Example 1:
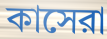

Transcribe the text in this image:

কাসেরা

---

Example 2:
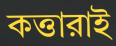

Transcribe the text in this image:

কত্তারাই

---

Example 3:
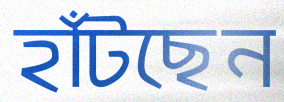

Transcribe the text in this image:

হাঁটছেন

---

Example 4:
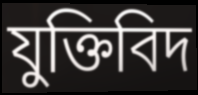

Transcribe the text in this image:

যুক্তিবিদ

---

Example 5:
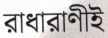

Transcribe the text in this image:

রাধারাণীই